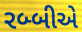
રબ્બીએ